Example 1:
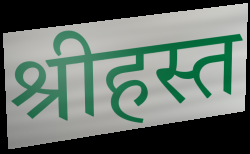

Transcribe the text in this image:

श्रीहस्त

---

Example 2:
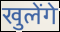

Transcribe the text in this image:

खुलेंगे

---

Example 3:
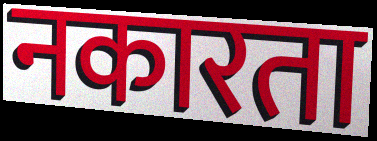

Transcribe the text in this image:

नकारता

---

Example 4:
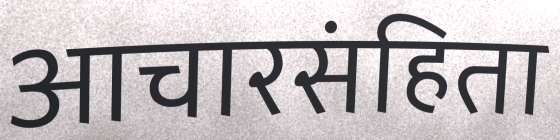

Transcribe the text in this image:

आचारसंहिता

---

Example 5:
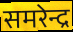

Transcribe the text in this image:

समरेन्द्र